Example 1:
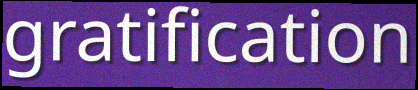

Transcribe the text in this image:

gratification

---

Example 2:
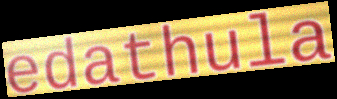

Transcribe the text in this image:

edathula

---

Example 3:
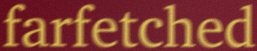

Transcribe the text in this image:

farfetched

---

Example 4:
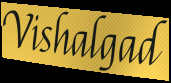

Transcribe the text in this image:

Vishalgad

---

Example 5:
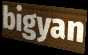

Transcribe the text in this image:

bigyan